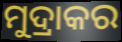
ମୁଦ୍ରାକର